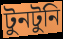
টুনটুনি